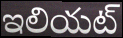
ఇలియట్